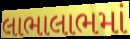
લાભાલાભમાં